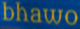
bhawo